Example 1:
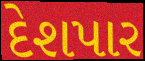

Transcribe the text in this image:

દેશપાર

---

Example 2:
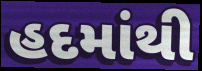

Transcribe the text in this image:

હદમાંથી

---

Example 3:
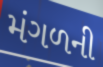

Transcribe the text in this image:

મંગળની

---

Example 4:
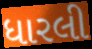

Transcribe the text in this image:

ધારલી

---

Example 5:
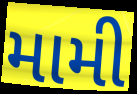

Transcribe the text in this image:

મામી